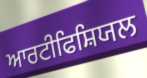
ਆਰਟੀਫਿਸ਼ਿਯਲ